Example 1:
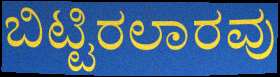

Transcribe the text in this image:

ಬಿಟ್ಟಿರಲಾರವು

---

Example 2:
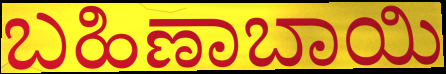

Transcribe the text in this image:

ಬಹಿಣಾಬಾಯಿ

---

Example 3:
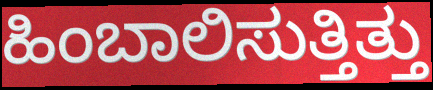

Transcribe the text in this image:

ಹಿಂಬಾಲಿಸುತ್ತಿತ್ತು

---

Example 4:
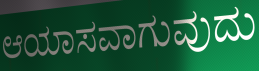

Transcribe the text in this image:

ಆಯಾಸವಾಗುವುದು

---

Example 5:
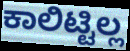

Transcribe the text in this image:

ಕಾಲಿಟ್ಟಿಲ್ಲ